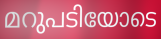
മറുപടിയോടെ